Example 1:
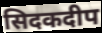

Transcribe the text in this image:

सिदकदीप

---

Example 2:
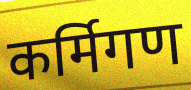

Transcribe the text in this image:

कर्मिगण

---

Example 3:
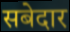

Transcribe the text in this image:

सबेदार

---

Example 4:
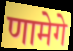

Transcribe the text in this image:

णामेगे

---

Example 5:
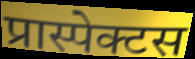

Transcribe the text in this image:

प्रास्पेक्टस